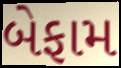
બેફામ